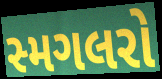
સ્મગલરો